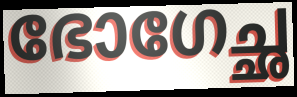
ഭോഗേച്ഛ